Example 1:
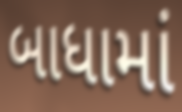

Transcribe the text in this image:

બાધામાં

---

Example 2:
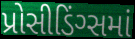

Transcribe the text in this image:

પ્રોસીડિંગ્સમાં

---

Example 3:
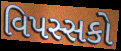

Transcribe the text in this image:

વિપસ્સકો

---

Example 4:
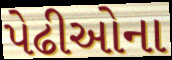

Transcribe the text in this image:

પેઢીઓના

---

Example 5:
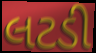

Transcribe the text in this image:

લટડી